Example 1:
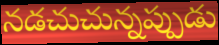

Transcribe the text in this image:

నడచుచున్నప్పుడు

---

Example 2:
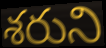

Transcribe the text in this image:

శరుని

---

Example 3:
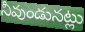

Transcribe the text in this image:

నీవుండునట్లు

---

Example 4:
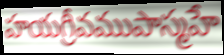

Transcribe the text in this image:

హయగ్రీవముపాస్మహే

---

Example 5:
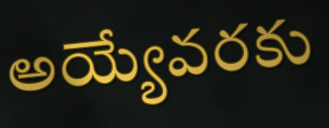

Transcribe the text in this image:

అయ్యేవరకు